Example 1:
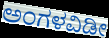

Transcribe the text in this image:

ಅಂಗಳವಿಡೀ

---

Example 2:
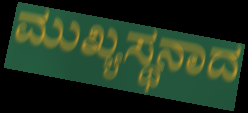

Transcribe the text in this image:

ಮುಖ್ಯಸ್ಥನಾದ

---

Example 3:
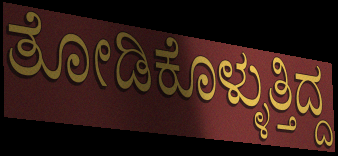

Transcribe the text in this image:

ತೋಡಿಕೊಳ್ಳುತ್ತಿದ್ದ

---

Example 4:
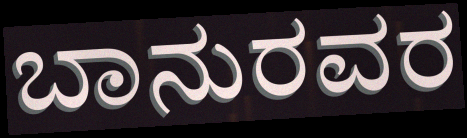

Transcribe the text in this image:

ಬಾನುರವರ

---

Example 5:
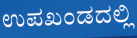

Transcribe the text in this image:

ಉಪಖಂಡದಲ್ಲಿ